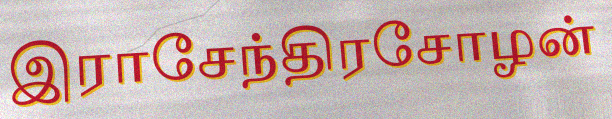
இராசேந்திரசோழன்